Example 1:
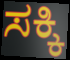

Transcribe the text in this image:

ಸಕ್ಕಿ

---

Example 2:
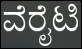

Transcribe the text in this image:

ವೆರೈಟಿ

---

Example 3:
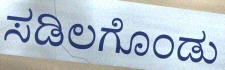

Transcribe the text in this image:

ಸಡಿಲಗೊಂಡು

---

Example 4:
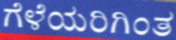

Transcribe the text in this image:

ಗೆಳೆಯರಿಗಿಂತ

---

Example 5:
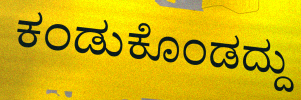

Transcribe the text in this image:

ಕಂಡುಕೊಂಡದ್ದು